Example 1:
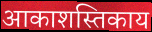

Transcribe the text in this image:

आकाशस्तिकाय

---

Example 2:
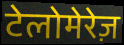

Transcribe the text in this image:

टेलोमेरेज़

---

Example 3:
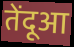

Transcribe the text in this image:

तेंदूआ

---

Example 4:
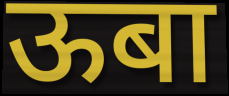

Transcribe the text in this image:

ऊबा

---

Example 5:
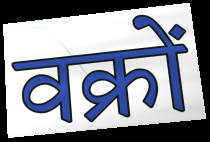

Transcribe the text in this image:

वक्रों